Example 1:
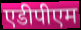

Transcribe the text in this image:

एडीपीएम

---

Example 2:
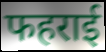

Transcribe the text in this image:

फहराई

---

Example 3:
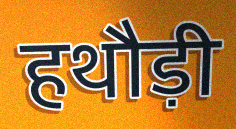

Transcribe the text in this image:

हथौड़ी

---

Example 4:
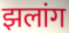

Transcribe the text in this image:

झलांग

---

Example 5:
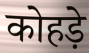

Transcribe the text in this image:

कोहड़े